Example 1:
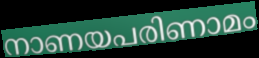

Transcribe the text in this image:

നാണയപരിണാമം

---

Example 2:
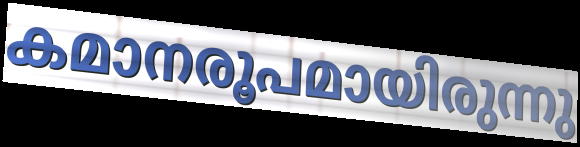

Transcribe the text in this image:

കമാനരൂപമായിരുന്നു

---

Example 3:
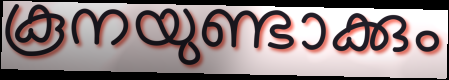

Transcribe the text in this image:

കൂനയുണ്ടാക്കും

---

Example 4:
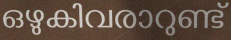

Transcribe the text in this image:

ഒഴുകിവരാറുണ്ട്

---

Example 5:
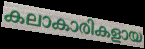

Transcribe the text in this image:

കലാകാരികളായ